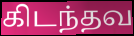
கிடந்தவ